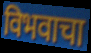
विभवाचा